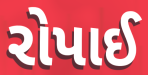
રોપાઈ